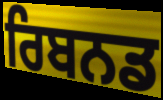
ਰਿਬਨਡ